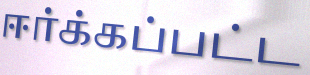
ஈர்க்கப்பட்ட